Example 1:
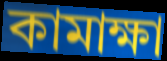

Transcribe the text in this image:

কামাক্ষা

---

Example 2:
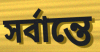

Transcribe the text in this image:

সর্বান্তে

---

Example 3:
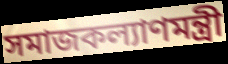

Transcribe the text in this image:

সমাজকল্যাণমন্ত্রী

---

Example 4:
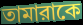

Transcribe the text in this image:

তামারাকে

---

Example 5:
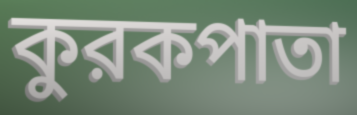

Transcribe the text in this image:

কুরকপাতা